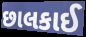
છાલકાઈ